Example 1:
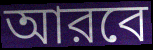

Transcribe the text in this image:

আরবে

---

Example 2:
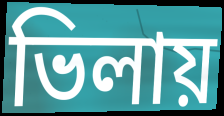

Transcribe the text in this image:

ভিলায়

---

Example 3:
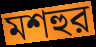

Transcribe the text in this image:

মশহুর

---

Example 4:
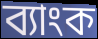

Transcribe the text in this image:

ব্যাংক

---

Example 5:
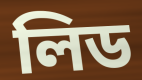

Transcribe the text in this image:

লিড